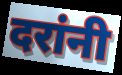
दरांनी